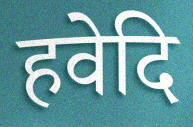
हवेदि